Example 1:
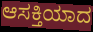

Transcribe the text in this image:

ಆಸಕ್ತಿಯಾದ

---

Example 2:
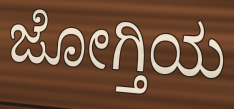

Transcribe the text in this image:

ಜೋಗ್ತಿಯ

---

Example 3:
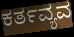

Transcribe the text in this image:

ಕರ್ತವ್ಯವ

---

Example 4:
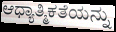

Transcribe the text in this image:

ಆಧ್ಯಾತ್ಮಿಕತೆಯನ್ನು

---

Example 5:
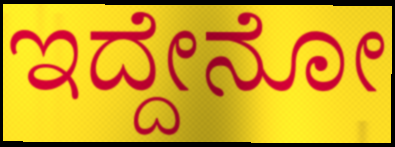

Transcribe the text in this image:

ಇದ್ದೇನೋ